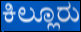
ಕಿಲ್ಲೂರು